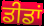
ਡੀਡਾਂ